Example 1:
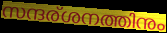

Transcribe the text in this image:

സന്ദര്ശനത്തിനും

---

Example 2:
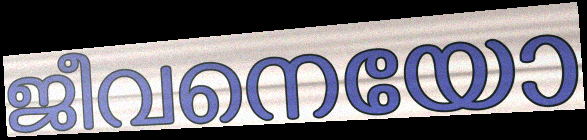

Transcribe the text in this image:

ജീവനെയോ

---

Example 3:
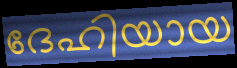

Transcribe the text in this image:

ദേഹിയായ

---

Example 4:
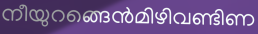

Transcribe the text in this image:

നീയുറങ്ങെൻമിഴിവണ്ടിണ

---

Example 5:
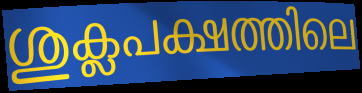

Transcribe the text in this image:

ശുക്ലപക്ഷത്തിലെ